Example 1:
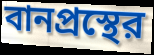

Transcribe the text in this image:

বানপ্রস্থের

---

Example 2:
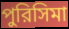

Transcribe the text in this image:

পুরিসিমা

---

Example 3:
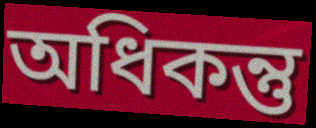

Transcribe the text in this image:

অধিকন্তু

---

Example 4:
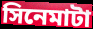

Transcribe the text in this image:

সিনেমাটা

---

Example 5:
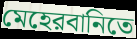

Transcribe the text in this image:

মেহেরবানিতে